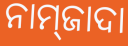
ନାମ୍‍ଜାଦା